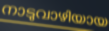
നാടുവാഴിയായ